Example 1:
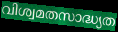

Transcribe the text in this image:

വിശ്വമതസാദ്ധ്യത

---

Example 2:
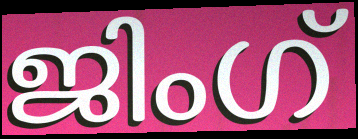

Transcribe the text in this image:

ജിംഗ്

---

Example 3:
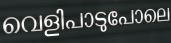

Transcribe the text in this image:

വെളിപാടുപോലെ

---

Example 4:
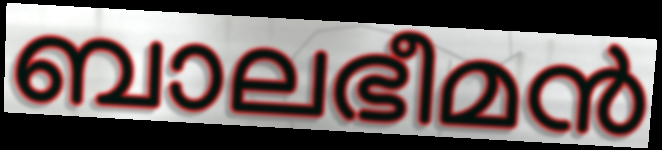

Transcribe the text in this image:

ബാലഭീമൻ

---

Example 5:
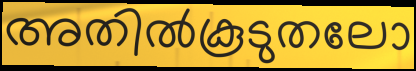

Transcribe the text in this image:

അതിൽകൂടുതലോ